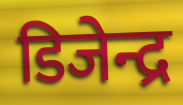
डिजेन्द्र